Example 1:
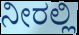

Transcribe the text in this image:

ನೀರಲ್ಲಿ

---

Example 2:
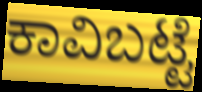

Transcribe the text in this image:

ಕಾವಿಬಟ್ಟೆ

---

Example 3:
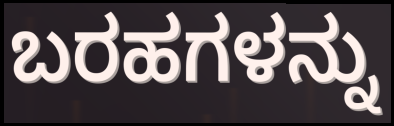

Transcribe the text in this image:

ಬರಹಗಳನ್ನು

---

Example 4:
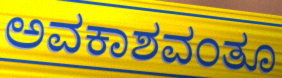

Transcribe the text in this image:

ಅವಕಾಶವಂತೂ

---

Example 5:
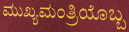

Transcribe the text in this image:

ಮುಖ್ಯಮಂತ್ರಿಯೊಬ್ಬ